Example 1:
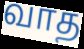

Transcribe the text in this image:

வாத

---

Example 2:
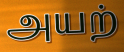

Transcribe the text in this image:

அயற்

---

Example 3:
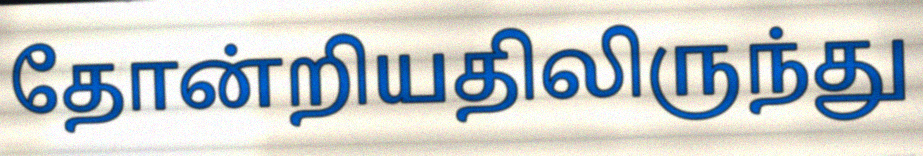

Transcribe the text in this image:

தோன்றியதிலிருந்து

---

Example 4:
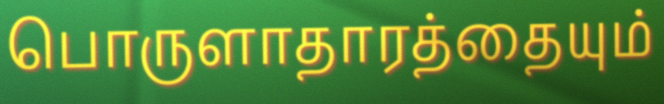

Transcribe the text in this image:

பொருளாதாரத்தையும்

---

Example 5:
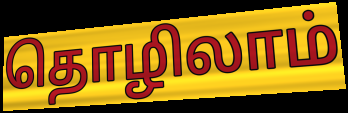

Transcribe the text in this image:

தொழிலாம்